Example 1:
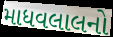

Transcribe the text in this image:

માધવલાલનો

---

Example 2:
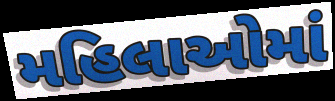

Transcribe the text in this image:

મહિલાઓમાં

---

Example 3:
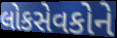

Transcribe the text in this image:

લોકસેવકોને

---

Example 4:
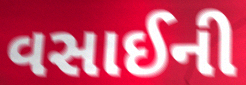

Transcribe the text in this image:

વસાઈની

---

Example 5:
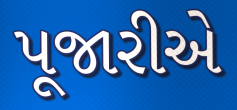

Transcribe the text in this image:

પૂજારીએ